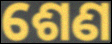
ଶେଣ